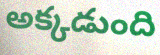
అక్కడుంది